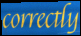
correctly